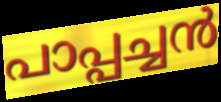
പാപ്പച്ചൻ